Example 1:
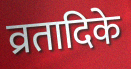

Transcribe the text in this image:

व्रतादिके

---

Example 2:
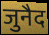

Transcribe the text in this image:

जुनैद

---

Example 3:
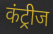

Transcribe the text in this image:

कंट्रीज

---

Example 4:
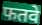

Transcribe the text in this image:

फतवे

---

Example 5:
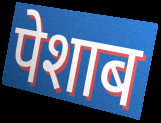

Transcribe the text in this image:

पेशाब